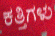
ಕತ್ತಿಗಳು